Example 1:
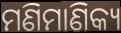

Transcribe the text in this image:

ମଣିମାଣିକ୍ୟ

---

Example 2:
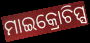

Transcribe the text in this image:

ମାଇକ୍ରୋଚିପ୍ସ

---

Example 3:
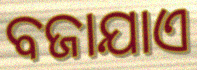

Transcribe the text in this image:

ବଜାଯାଏ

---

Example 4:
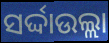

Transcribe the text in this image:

ସର୍ଦ୍ଦାଉଲ୍ଲା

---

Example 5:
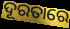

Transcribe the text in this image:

ଦୂରତାରେ